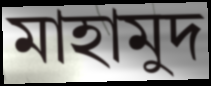
মাহামুদ